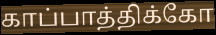
காப்பாத்திக்கோ